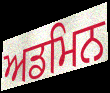
ਅਡਮਿਨ